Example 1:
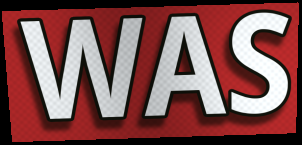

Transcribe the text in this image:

WAS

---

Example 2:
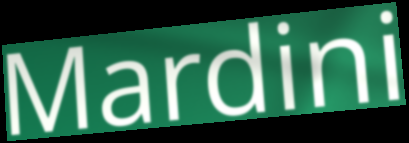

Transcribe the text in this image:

Mardini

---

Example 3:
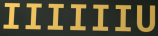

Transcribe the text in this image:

IIIIIIU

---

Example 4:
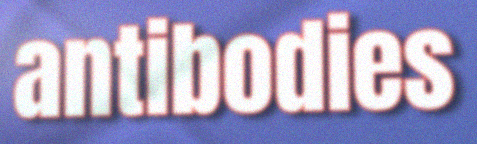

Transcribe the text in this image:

antibodies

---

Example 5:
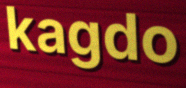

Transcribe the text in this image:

kagdo